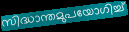
സിദ്ധാന്തമുപയോഗിച്ച്